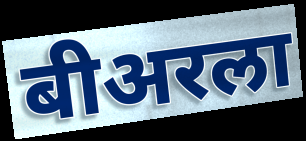
बीअरला